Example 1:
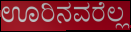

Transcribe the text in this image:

ಊರಿನವರೆಲ್ಲ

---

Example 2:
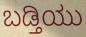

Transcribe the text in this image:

ಬಡ್ತಿಯು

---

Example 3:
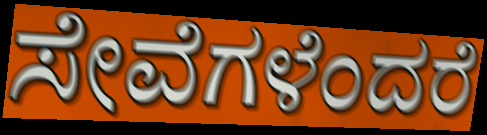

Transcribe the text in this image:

ಸೇವೆಗಳೆಂದರೆ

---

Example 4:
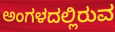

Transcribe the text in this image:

ಅಂಗಳದಲ್ಲಿರುವ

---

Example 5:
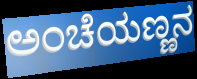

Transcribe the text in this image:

ಅಂಚೆಯಣ್ಣನ